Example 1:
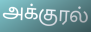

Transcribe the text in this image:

அக்குரல்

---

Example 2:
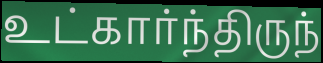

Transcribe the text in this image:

உட்கார்ந்திருந்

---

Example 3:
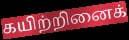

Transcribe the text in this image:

கயிற்றினைக்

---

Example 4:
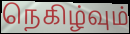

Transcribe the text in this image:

நெகிழ்வும்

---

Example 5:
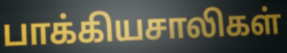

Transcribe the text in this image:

பாக்கியசாலிகள்